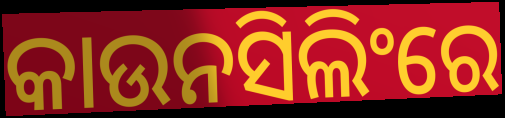
କାଉନସିଲିଂରେ